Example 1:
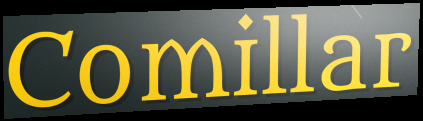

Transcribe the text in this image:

Comillar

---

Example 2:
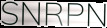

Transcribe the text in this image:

SNRPN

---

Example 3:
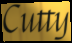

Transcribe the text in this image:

Cutty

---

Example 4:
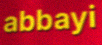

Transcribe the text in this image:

abbayi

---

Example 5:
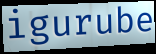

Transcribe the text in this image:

igurube